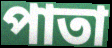
পাতা